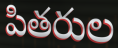
పితరుల